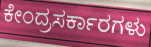
ಕೇಂದ್ರಸರ್ಕಾರಗಳು